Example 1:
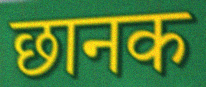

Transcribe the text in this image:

छानक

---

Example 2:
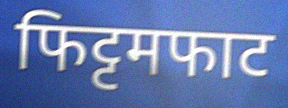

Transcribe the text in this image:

फिट्टमफाट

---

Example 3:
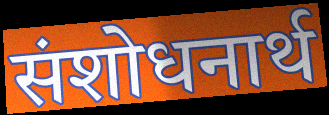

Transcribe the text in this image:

संशोधनार्थ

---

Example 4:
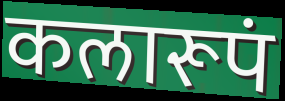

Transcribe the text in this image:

कलारूपं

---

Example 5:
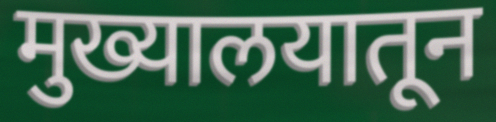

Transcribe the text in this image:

मुख्यालयातून